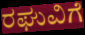
ರಘುವಿಗೆ